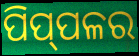
ପିପ୍‌ପଳର